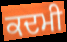
ਕਦਮੀ